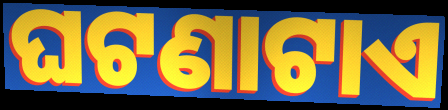
ଘଟଣାଟାଏ